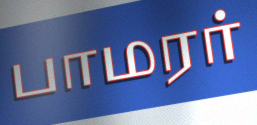
பாமரர்